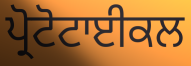
ਪ੍ਰੋਟੋਟਾਈਕਲ